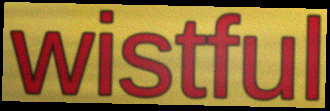
wistful